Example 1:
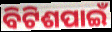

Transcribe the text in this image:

ବିଟିଶପାଇଁ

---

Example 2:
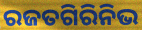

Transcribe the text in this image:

ରଜତଗିରିନିଭ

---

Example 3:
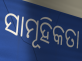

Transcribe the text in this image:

ସାମୂହିକତା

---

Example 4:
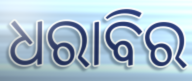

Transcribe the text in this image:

ଧରାବିର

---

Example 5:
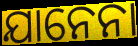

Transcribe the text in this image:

ଯାନେନା